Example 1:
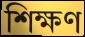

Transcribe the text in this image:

শিক্ষণ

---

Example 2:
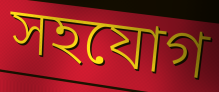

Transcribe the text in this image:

সহযোগ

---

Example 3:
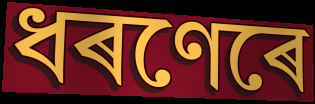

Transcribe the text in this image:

ধৰণেৰে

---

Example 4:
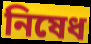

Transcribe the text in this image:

নিষেধ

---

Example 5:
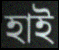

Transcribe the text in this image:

হাই